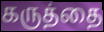
கருத்தை